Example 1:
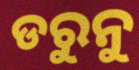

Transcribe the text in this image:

ଡରୁନୁ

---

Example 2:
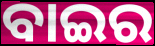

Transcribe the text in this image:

ବାଇର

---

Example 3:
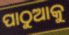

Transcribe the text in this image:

ପାଠୁଆକୁ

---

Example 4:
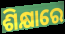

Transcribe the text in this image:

ଶିକ୍ଷାରେ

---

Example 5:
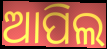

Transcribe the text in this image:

ଆପିଲ